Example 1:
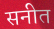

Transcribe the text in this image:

सनीत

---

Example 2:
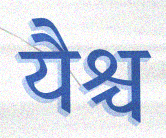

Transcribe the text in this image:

यैश्च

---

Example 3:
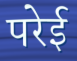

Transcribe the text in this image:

परेई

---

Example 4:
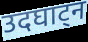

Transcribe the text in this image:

उदघाट्न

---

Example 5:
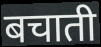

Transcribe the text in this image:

बचाती